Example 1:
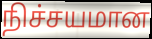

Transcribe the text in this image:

நிச்சயமான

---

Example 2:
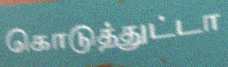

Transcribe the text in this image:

கொடுத்துட்டா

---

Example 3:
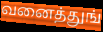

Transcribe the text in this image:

வனைத்துங்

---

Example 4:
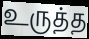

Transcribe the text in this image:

உருத்த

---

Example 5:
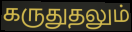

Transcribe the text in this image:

கருதுதலும்